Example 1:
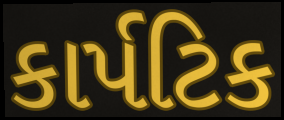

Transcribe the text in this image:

કાર્પટિક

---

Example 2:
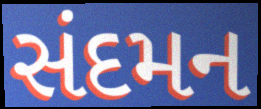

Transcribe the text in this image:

સંદમન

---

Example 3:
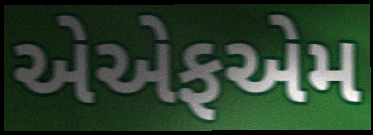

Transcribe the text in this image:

એએફએમ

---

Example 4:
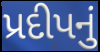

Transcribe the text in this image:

પ્રદીપનું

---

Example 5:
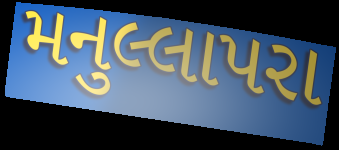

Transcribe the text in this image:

મનુલ્લાપરા